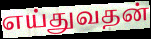
எய்துவதன்